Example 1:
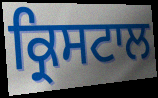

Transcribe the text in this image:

ਕ੍ਰਿਸਟਾਲ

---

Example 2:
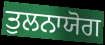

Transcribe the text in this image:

ਤੁਲਨਾਯੋਗ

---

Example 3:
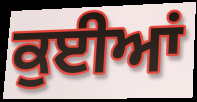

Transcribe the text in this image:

ਕੁਈਆਂ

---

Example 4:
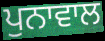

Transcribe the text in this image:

ਪੁਨਾਵਾਲ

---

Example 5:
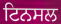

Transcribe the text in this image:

ਟਿਨਸਲ